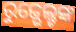
ରୁଜ୍ଭେଲ୍ଟଙ୍କ